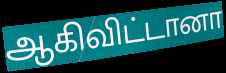
ஆகிவிட்டானா